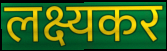
लक्ष्यकर